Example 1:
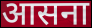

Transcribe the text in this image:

आसना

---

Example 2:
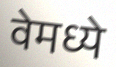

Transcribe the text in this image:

वेमध्ये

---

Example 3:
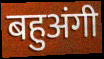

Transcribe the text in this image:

बहुअंगी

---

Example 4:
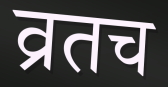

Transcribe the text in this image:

व्रतच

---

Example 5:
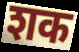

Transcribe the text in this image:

शक